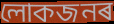
লোকজনৰ